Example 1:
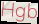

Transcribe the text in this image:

Hgb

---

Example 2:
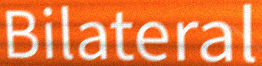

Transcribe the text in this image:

Bilateral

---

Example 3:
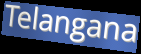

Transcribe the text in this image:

Telangana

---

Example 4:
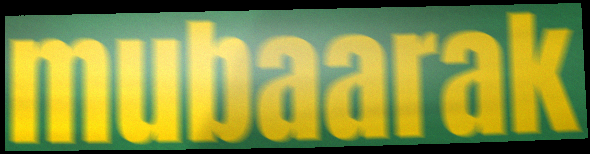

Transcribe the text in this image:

mubaarak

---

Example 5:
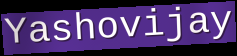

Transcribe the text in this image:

Yashovijay